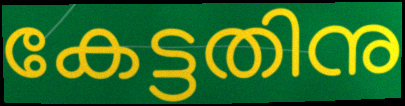
കേട്ടതിനു